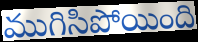
ముగిసిపోయింది